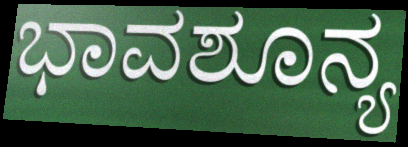
ಭಾವಶೂನ್ಯ